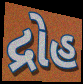
દ્રોહ